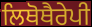
ਲਿਥੋਥੈਰੇਪੀ